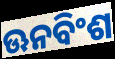
ଊନବିଂଶ